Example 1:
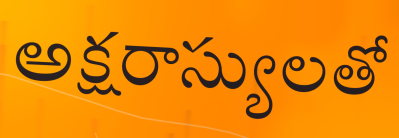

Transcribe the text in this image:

అక్షరాస్యులతో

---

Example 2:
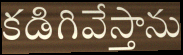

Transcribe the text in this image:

కడిగివేస్తాను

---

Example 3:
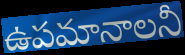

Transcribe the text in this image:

ఉపమానాలనీ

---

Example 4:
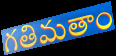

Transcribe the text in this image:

గతిమతాం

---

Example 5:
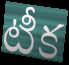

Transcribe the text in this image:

టీక